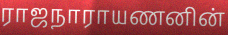
ராஜநாராயணனின்